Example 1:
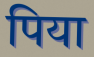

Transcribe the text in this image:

पिया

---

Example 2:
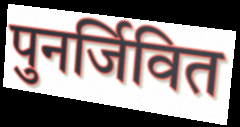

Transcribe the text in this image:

पुनर्जिवित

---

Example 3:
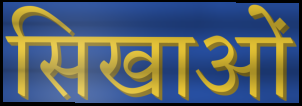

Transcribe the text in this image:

सिखाओं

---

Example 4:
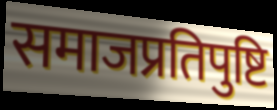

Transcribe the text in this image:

समाजप्रतिपुष्टि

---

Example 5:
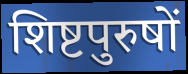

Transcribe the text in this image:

शिष्टपुरुषों